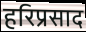
हरिप्रसाद